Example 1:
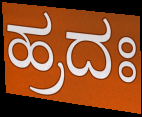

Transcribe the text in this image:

ಹ್ರದಃ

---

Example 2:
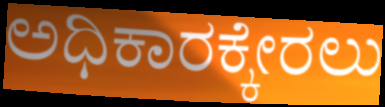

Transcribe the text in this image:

ಅಧಿಕಾರಕ್ಕೇರಲು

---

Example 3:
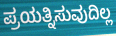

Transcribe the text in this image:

ಪ್ರಯತ್ನಿಸುವುದಿಲ್ಲ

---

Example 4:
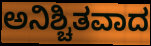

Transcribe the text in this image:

ಅನಿಶ್ಚಿತವಾದ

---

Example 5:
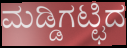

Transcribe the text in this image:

ಮಡ್ಡಿಗಟ್ಟಿದ